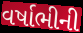
વર્ષાભીની